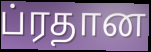
ப்ரதான